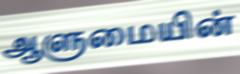
ஆளுமையின்